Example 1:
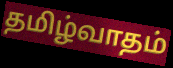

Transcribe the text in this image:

தமிழ்வாதம்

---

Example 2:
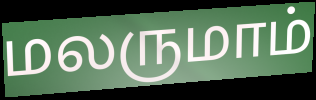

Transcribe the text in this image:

மலருமாம்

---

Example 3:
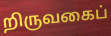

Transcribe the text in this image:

றிருவகைப்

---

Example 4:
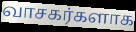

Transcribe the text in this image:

வாசகர்களாக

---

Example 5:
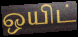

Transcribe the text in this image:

ஒயிட்